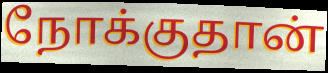
நோக்குதான்